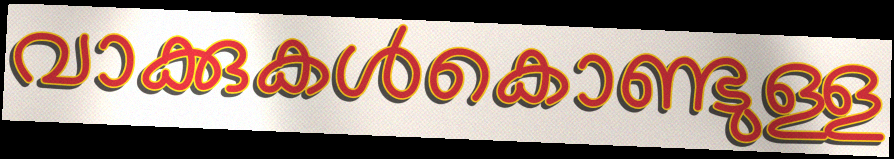
വാക്കുകൾകൊണ്ടുള്ള